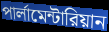
পার্লামেন্টারিয়ান